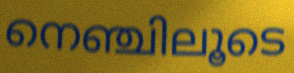
നെഞ്ചിലൂടെ